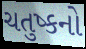
ચતુષ્કનો